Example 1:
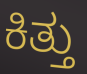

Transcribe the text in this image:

ಕಿತ್ತು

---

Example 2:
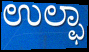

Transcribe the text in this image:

ಉಲ್ಫಾ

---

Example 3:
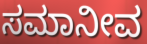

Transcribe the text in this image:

ಸಮಾನೀವ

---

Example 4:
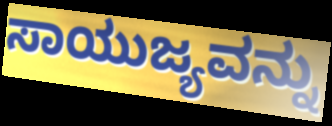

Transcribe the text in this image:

ಸಾಯುಜ್ಯವನ್ನು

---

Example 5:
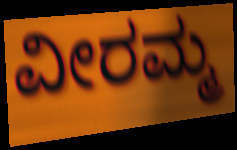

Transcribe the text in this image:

ವೀರಮ್ಮ